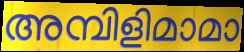
അമ്പിളിമാമാ